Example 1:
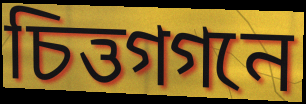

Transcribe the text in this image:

চিত্তগগনে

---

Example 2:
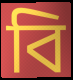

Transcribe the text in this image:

বি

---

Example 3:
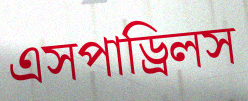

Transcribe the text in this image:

এসপাড্রিলস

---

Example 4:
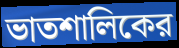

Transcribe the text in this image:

ভাতশালিকের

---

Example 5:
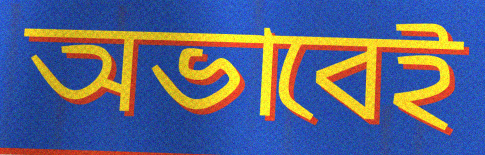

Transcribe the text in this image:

অভাবেই